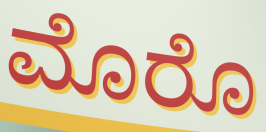
ಮೊರೊ